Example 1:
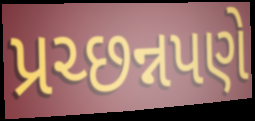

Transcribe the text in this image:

પ્રચ્છન્નપણે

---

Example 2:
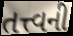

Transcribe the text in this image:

તત્ત્વની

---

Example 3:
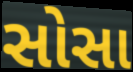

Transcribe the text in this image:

સોસા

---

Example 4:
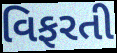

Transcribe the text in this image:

વિફરતી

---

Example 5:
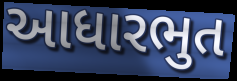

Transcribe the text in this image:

આધારભુત